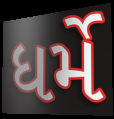
ધર્મે